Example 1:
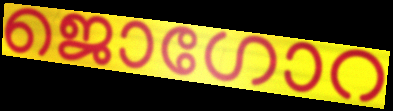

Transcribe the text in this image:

ജൊഗോറ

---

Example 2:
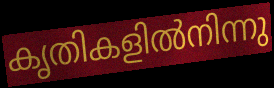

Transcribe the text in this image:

കൃതികളിൽനിന്നു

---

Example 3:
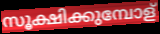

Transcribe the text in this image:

സൂക്ഷിക്കുമ്പോള്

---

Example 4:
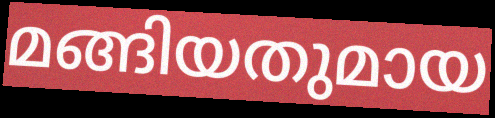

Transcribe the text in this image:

മങ്ങിയതുമായ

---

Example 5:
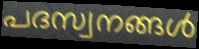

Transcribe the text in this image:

പദസ്വനങ്ങൾ